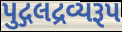
પુદ્ગલદ્રવ્યરૂપ